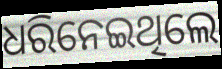
ଧରିନେଇଥିଲେ